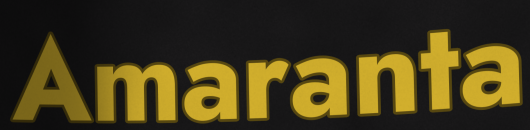
Amaranta